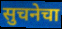
सुचनेचा